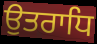
ਉਤਰਾਧਿ